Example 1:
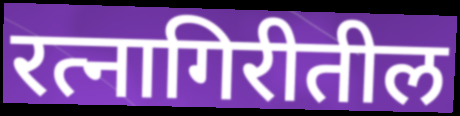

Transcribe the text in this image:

रत्नागिरीतील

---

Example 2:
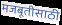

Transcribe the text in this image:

मजबूतीसाठी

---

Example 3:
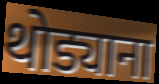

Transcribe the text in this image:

थोड्याना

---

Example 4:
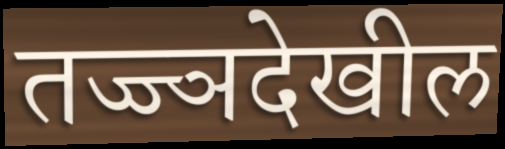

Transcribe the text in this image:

तज्ज्ञदेखील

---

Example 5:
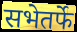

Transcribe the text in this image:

सभेतर्फे